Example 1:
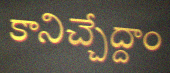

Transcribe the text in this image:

కానిచ్చేద్దాం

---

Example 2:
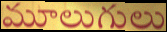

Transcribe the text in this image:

మూలుగులు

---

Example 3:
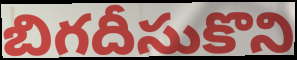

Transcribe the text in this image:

బిగదీసుకొని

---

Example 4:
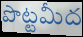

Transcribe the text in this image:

పొట్టమీద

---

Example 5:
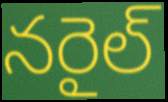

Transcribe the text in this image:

నరైల్